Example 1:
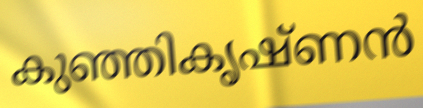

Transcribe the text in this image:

കുഞ്ഞികൃഷ്ണൻ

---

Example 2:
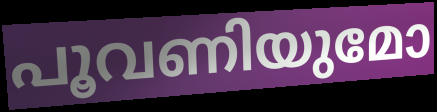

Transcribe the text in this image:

പൂവണിയുമോ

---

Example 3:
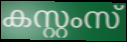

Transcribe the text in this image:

കസ്റ്റംസ്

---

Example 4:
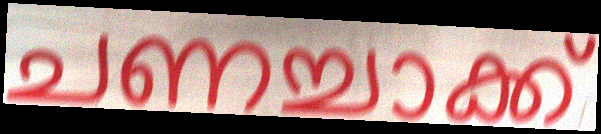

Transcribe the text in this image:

ചണച്ചാക്ക്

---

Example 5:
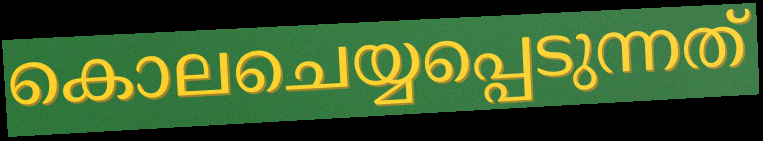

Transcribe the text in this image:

കൊലചെയ്യപ്പെടുന്നത്